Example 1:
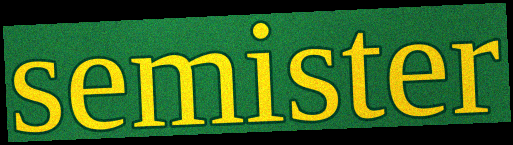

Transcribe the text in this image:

semister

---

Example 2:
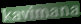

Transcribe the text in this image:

kavimana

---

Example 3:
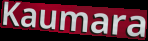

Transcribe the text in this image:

Kaumara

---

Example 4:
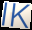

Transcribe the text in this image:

IK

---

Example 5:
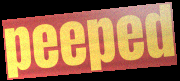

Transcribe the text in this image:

peeped